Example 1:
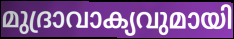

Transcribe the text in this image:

മുദ്രാവാക്യവുമായി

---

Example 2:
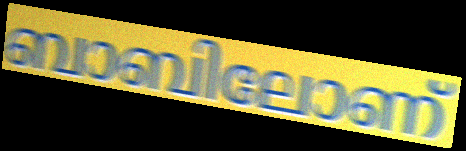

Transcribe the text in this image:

ബാബിലോണ്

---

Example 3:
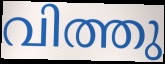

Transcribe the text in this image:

വിത്തു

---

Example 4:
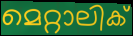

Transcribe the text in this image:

മെറ്റാലിക്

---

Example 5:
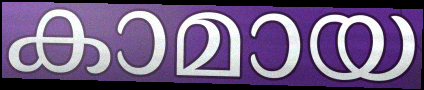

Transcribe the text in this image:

കാമായ